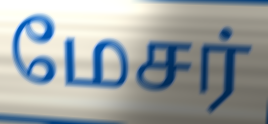
மேசர்